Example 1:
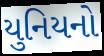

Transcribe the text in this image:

યુનિયનો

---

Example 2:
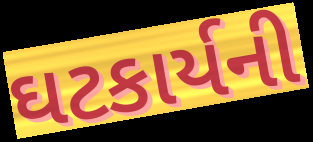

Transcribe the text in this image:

ઘટકાર્યની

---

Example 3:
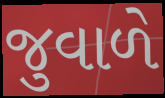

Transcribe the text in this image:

જુવાળે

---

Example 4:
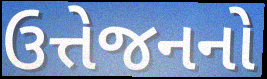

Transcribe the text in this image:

ઉત્તેજનનો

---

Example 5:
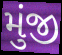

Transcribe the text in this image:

મુંજી